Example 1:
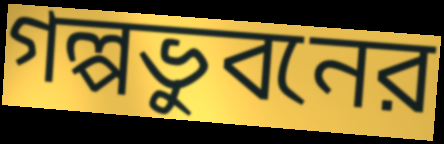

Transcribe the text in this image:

গল্পভুবনের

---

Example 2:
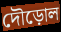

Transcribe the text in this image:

দৌড়োল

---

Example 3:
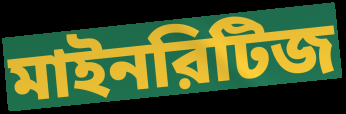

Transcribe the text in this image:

মাইনরিটিজ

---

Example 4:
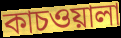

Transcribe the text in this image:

কাচওয়ালা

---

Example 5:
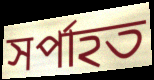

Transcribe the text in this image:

সর্পাহত